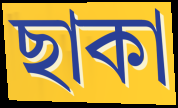
ছাকা